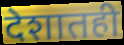
देशातही